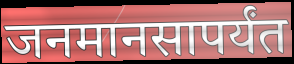
जनमानसापर्यंत